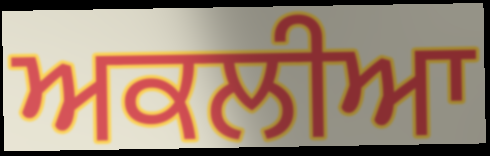
ਅਕਲੀਆ